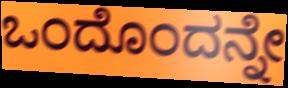
ಒಂದೊಂದನ್ನೇ